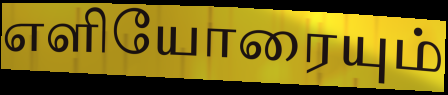
எளியோரையும்